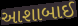
આશાબાઈ